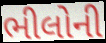
ભીલોની